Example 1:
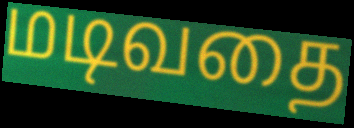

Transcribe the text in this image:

மடிவதை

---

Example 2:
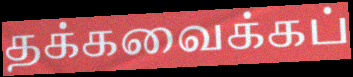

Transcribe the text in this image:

தக்கவைக்கப்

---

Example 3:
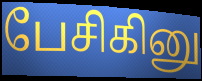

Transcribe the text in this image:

பேசிகினு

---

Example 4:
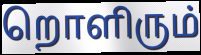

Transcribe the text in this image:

றொளிரும்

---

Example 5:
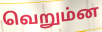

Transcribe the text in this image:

வெறும்ன